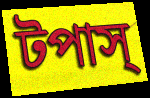
টপাস্